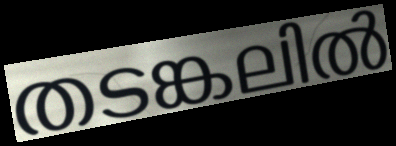
തടങ്കലിൽ